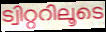
ട്വിറ്ററിലൂടെ